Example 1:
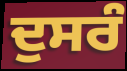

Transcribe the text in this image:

ਦੁਸਰੰ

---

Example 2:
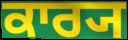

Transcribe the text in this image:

ਕਾਰ੍ਯ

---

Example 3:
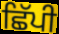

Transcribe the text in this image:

ਛਿੱਪੀ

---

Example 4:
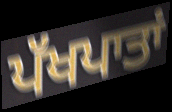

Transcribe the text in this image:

ਪੱਖਪਾਤਾਂ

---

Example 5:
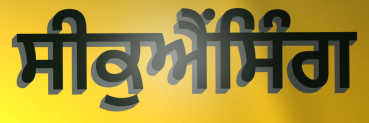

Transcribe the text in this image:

ਸੀਕੁਐਂਸਿੰਗ